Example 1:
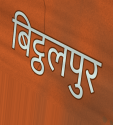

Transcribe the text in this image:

बिट्ठलपुर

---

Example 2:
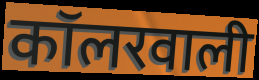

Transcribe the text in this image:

कॉलरवाली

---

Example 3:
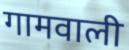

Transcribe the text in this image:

गामवाली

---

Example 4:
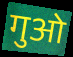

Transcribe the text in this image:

गुओ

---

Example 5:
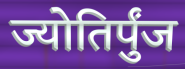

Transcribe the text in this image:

ज्योतिर्पुंज